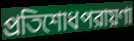
প্রতিশোধপরায়ণা